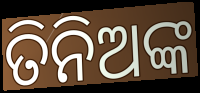
ତିନିଅଙ୍କ